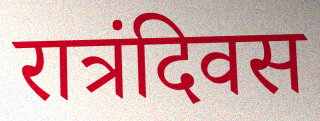
रात्रंदिवस